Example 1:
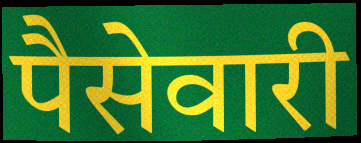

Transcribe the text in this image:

पैसेवारी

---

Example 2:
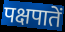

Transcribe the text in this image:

पक्षपातें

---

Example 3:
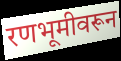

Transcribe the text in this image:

रणभूमीवरून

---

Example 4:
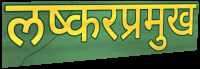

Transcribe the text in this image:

लष्करप्रमुख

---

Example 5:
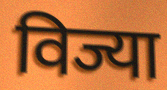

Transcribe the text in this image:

विज्या